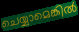
ചെയ്യാമെങ്കിൽ